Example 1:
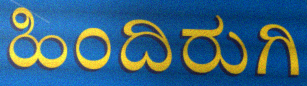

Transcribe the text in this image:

ಹಿಂದಿರುಗಿ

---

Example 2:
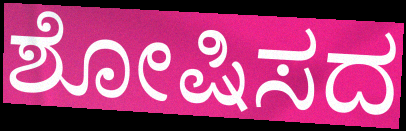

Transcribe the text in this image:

ಶೋಷಿಸದ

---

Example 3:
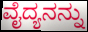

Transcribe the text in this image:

ವೈದ್ಯನನ್ನು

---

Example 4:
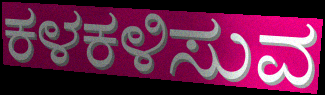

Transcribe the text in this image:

ಕಳಕಳಿಸುವ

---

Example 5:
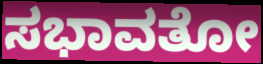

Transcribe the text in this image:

ಸಭಾವತೋ